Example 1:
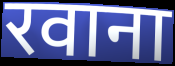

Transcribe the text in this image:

रवाना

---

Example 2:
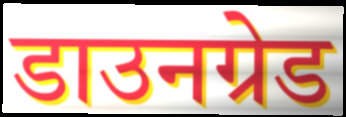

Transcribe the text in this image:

डाउनग्रेड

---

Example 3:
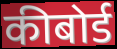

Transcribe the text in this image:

कीबोर्ड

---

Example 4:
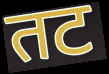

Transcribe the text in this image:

तट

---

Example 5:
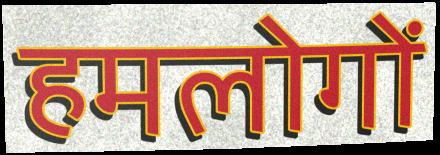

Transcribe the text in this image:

हमलोगों